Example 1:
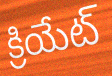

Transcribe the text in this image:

క్రియేట్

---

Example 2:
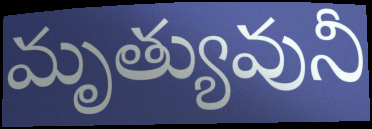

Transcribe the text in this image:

మృత్యువునీ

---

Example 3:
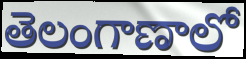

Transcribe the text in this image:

తెలంగాణాలో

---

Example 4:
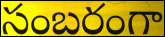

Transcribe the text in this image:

సంబరంగా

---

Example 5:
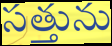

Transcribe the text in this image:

సత్తును